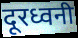
दूरध्वनी